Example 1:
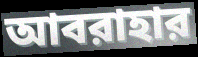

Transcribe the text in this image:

আবরাহার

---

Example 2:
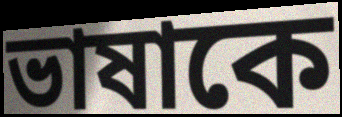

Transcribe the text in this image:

ভাষাকে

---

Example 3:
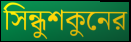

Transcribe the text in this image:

সিন্ধুশকুনের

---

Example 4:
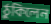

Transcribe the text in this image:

ঠুকিলেন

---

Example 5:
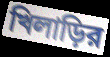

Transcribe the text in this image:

খিলাড়ির